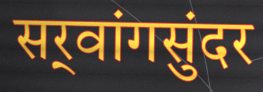
सर्वांगसुंदर